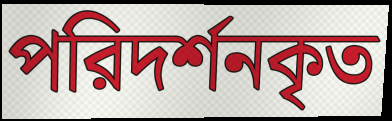
পরিদর্শনকৃত